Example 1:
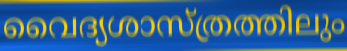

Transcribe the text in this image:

വൈദ്യശാസ്ത്രത്തിലും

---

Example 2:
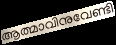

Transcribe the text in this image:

ആത്മാവിനുവേണ്ടി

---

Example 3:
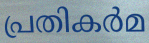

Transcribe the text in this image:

പ്രതികർമ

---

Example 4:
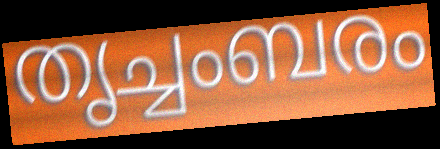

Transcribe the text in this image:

തൃച്ചംബരം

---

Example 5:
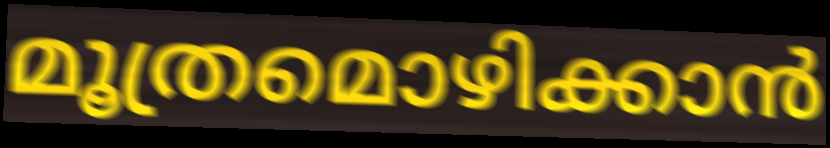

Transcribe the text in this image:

മൂത്രമൊഴിക്കാൻ